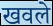
खवले